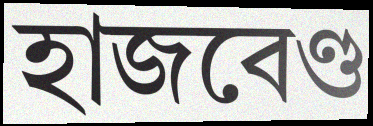
হাজবেণ্ড